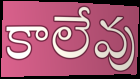
కాలేవు